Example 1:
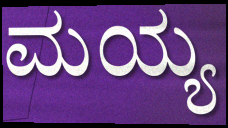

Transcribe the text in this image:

ಮಯ್ಯ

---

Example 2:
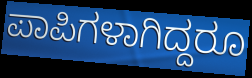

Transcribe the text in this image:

ಪಾಪಿಗಳಾಗಿದ್ದರೂ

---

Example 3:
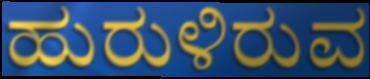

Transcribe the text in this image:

ಹುರುಳಿರುವ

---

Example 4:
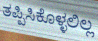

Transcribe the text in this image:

ತಪ್ಪಿಸಿಕೊಳ್ಳಲಿಲ್ಲ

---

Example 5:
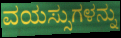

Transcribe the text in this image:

ವಯಸ್ಸುಗಳನ್ನು